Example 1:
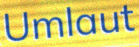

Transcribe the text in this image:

Umlaut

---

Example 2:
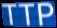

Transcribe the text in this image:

TTP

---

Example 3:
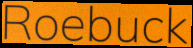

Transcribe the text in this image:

Roebuck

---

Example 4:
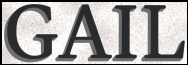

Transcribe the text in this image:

GAIL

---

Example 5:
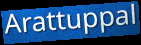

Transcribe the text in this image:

Arattuppal